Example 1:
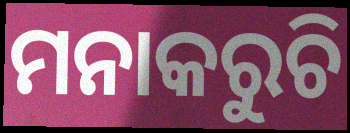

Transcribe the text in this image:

ମନାକରୁଚି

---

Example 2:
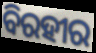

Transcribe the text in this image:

ବିରହୀର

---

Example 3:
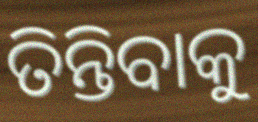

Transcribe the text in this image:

ତିନ୍ତିବାକୁ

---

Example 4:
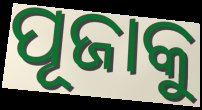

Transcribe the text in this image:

ପୂଜାକୁ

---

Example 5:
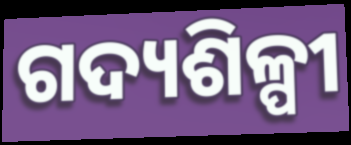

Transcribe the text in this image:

ଗଦ୍ୟଶିଳ୍ପୀ